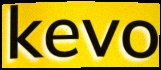
kevo